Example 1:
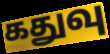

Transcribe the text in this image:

கதுவு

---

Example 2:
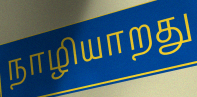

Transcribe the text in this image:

நாழியாறது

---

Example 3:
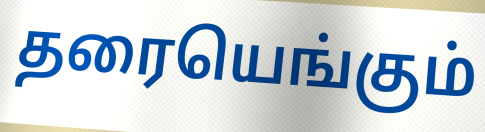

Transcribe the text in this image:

தரையெங்கும்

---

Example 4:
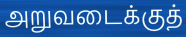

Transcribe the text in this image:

அறுவடைக்குத்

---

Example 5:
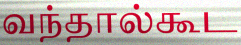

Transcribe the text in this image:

வந்தால்கூட